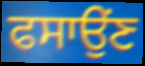
ਫਸਾਉਂਣ